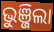
ଭୁଞ୍ଜିଲା